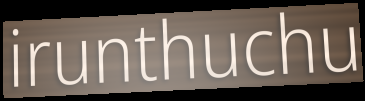
irunthuchu